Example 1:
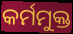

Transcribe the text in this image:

କର୍ମମୁକ୍ତ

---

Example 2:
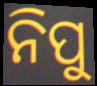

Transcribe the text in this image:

ନିପୁ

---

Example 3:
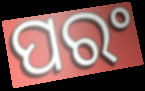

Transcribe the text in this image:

ପରଂ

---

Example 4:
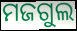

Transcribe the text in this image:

ମଜଗୁଲ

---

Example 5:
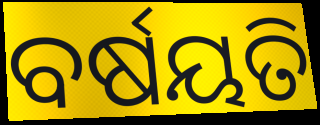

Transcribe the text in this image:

ବର୍ଷୟତି